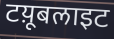
टय़ूबलाइट